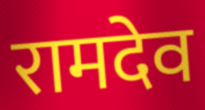
रामदेव